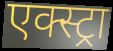
एक्स्ट्रा